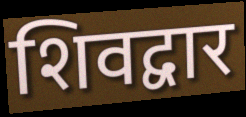
शिवद्वार